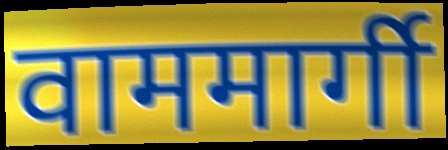
वाममार्गी